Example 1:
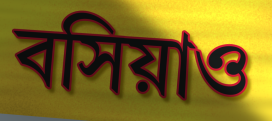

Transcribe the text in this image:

বসিয়াও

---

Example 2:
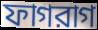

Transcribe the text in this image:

ফাগরাগ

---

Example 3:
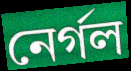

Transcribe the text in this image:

নের্গল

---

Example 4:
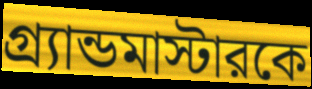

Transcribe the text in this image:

গ্র্যান্ডমাস্টারকে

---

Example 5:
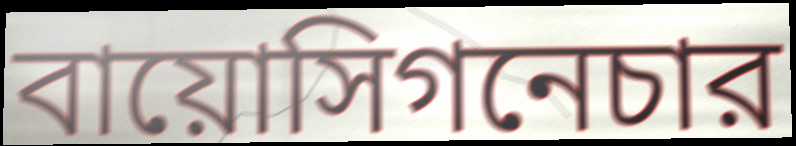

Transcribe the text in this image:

বায়োসিগনেচার